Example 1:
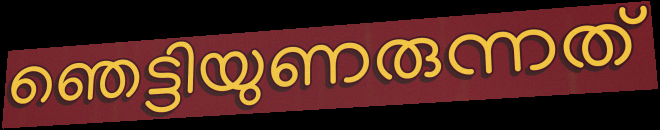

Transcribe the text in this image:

ഞെട്ടിയുണരുന്നത്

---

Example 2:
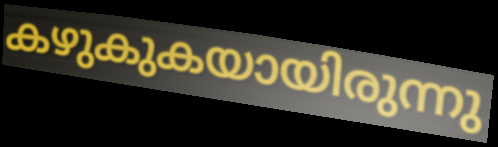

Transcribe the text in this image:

കഴുകുകയായിരുന്നു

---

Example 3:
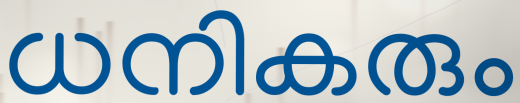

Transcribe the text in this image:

ധനികരും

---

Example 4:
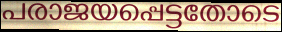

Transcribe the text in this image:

പരാജയപ്പെട്ടതോടെ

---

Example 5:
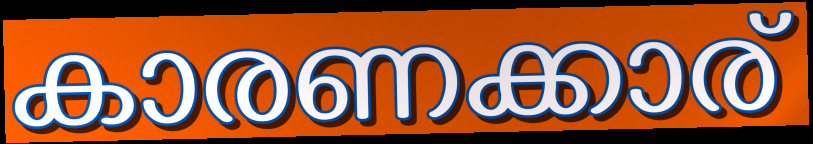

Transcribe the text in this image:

കാരണക്കാര്